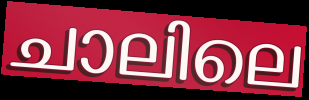
ചാലിലെ